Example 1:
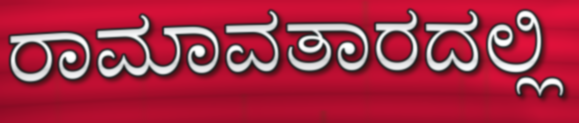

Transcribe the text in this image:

ರಾಮಾವತಾರದಲ್ಲಿ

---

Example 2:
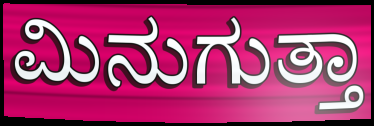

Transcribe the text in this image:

ಮಿನುಗುತ್ತಾ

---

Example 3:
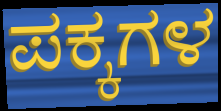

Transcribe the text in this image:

ಪಕ್ಕಗಳ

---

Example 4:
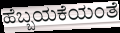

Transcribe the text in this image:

ಹೆಬ್ಬಯಕೆಯಂತೆ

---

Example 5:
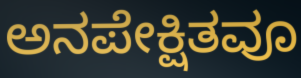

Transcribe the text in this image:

ಅನಪೇಕ್ಷಿತವೂ